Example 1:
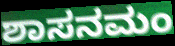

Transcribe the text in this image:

ಶಾಸನಮಂ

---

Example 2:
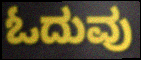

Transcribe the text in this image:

ಓದುವು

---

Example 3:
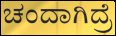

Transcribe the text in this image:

ಚಂದಾಗಿದ್ರೆ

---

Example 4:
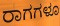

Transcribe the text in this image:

ರಾಗಗಳೂ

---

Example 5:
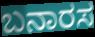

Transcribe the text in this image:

ಬನಾರಸ